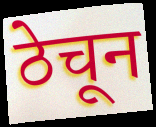
ठेचून